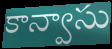
కాన్వాసు